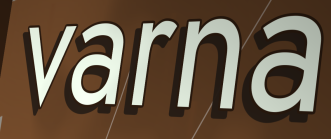
varna